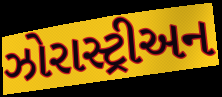
ઝોરાસ્ટ્રીઅન